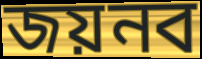
জয়নব